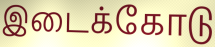
இடைக்கோடு